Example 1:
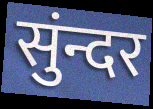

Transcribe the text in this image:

सुंन्दर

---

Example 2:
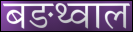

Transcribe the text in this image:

बङथ्वाल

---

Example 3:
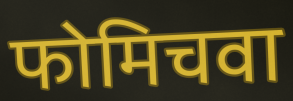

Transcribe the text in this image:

फोमिचवा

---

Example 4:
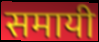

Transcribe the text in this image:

समायी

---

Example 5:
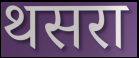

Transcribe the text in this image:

थसरा